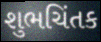
શુભચિંતક